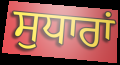
ਸੁਧਾਰਾਂ